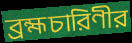
ব্রহ্মচারিণীর